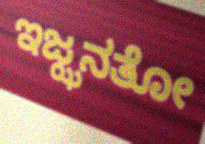
ಇಜ್ಝನತೋ